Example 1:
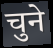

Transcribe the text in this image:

चुने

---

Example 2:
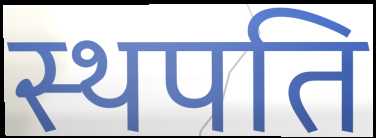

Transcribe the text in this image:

स्थपति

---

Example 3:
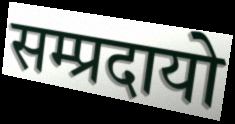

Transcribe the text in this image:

सम्प्रदायो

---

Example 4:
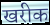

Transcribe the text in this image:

खरीक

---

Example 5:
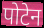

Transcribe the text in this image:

पोटेन